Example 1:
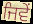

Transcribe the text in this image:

ਜਿਵੇੰ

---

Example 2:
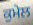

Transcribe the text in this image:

ਕੁਮੇਲ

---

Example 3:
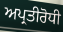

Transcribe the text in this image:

ਅਪ੍ਰਤੀਰੋਧੀ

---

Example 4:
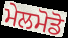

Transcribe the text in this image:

ਮੇਲਮੋਡੋ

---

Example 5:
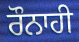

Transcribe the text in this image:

ਰੌਨਾਹੀ